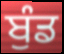
ਬੁੰਡ